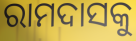
ରାମଦାସକୁ